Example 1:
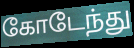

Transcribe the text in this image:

கோடேந்து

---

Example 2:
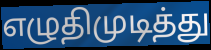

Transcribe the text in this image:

எழுதிமுடித்து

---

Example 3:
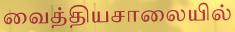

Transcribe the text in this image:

வைத்தியசாலையில்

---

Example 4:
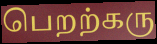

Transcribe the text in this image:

பெறற்கரு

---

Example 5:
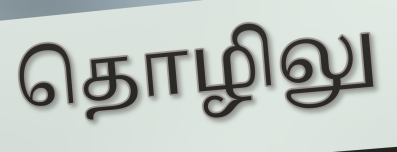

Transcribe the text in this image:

தொழிலு